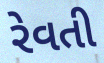
રેવતી